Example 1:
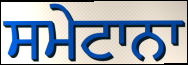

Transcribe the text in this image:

ਸਮੇਟਾਨਾ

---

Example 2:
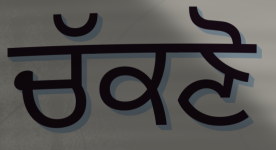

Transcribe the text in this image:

ਚੱਕਣੋ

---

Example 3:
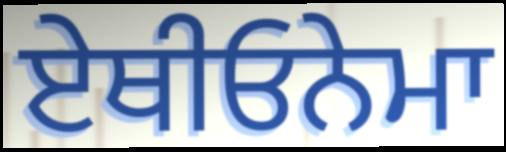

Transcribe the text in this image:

ਏਥੀਓਨੇਮਾ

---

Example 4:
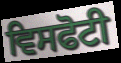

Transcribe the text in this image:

ਵਿਸਫੋਟੀ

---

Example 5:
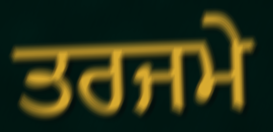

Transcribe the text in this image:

ਤਰਜਮੇ